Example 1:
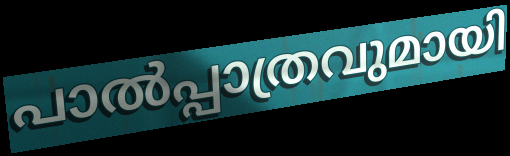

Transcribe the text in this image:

പാൽപ്പാത്രവുമായി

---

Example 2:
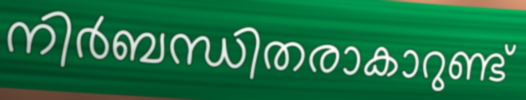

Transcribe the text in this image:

നിർബന്ധിതരാകാറുണ്ട്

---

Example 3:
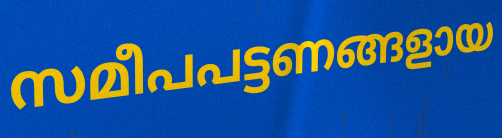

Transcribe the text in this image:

സമീപപട്ടണങ്ങളായ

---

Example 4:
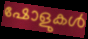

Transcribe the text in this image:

ഷോളുകൾ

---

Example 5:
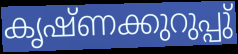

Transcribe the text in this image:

കൃഷ്ണക്കുറുപ്പു്